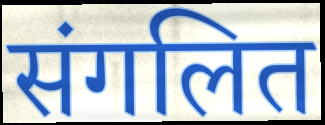
संगलित